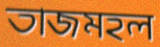
তাজমহল